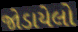
જોડાયેલો